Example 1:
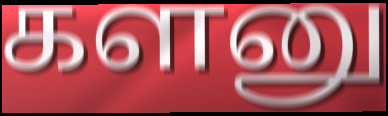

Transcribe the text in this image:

களனு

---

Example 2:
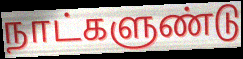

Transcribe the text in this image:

நாட்களுண்டு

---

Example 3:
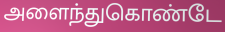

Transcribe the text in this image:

அளைந்துகொண்டே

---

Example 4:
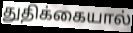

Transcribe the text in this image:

துதிக்கையால்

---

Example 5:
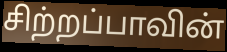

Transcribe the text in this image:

சிற்றப்பாவின்